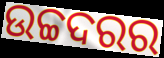
ଉଚ୍ଚଦରର